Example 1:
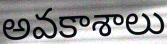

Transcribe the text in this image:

అవకాశాలు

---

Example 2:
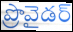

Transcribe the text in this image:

ప్రొవైడర్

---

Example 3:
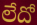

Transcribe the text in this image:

లేదో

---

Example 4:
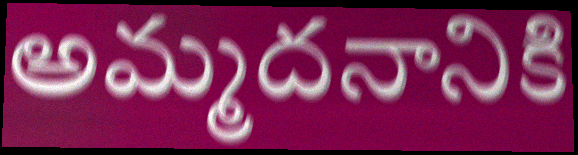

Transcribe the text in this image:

అమ్మదనానికి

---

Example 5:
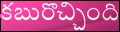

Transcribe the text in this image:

కబురొచ్చింది